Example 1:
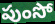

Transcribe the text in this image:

పుంసో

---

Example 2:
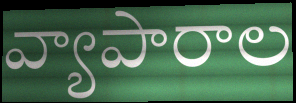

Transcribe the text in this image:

వ్యాపారాల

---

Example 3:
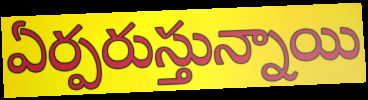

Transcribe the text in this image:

ఏర్పరుస్తున్నాయి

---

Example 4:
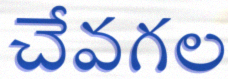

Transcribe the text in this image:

చేవగల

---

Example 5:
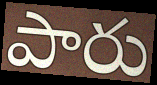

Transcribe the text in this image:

పారు